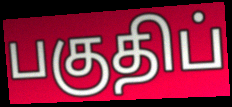
பகுதிப்